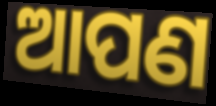
ଆପଣ